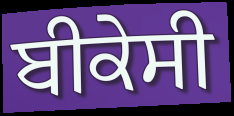
ਬੀਕੇਸੀ